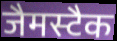
जैमस्टैक